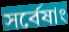
সর্বেষাং